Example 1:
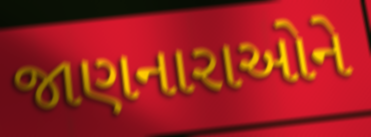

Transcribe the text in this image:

જાણનારાઓને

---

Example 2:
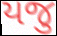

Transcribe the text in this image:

યજુ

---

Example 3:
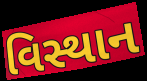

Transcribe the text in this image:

વિસ્થાન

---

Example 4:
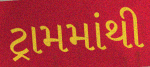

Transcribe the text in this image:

ટ્રામમાંથી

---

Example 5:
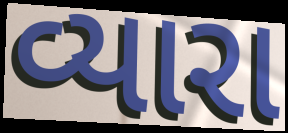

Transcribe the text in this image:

વ્યારા